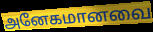
அனேகமானவை